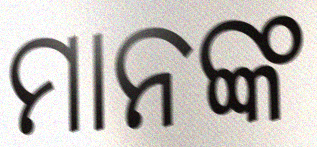
ମାନଙ୍କ